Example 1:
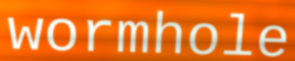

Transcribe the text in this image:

wormhole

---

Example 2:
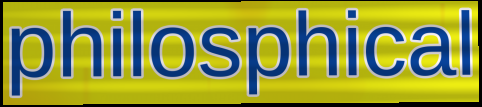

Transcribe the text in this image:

philosphical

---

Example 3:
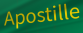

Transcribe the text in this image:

Apostille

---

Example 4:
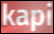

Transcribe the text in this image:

kapi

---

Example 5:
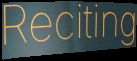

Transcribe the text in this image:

Reciting